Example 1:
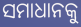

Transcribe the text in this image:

ସମାଧାନକୁ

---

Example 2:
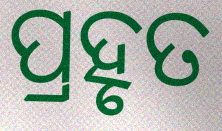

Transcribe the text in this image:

ପ୍ରହୃତ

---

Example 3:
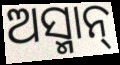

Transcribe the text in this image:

ଅସ୍ମାନ୍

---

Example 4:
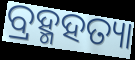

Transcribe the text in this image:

ବ୍ରହ୍ମହତ୍ୟା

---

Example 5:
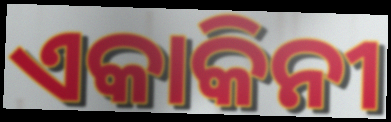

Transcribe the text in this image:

ଏକାକିନୀ